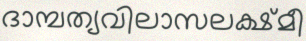
ദാമ്പത്യവിലാസലക്ഷ്മീ